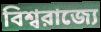
বিশ্বরাজ্যে